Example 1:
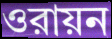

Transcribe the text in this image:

ওরায়ন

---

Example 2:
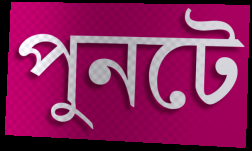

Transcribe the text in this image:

পুনটে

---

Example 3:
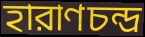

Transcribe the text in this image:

হারাণচন্দ্র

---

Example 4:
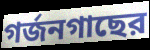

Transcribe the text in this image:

গর্জনগাছের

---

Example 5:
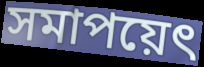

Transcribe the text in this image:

সমাপয়েৎ